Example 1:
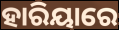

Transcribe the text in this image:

ହାରିୟାରେ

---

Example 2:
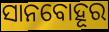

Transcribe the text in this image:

ସାନବୋହୂର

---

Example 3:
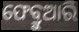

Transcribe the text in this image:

ଫେବ୍ରୁଆରି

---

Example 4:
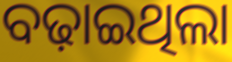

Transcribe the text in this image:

ବଢ଼ାଇଥିଲା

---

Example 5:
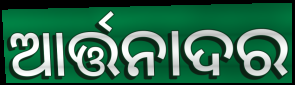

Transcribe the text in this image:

ଆର୍ତ୍ତନାଦର